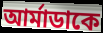
আর্মাডাকে